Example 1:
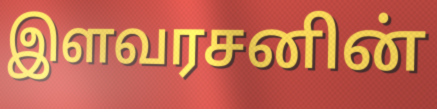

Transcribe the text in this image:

இளவரசனின்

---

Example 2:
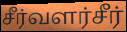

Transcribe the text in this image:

சீர்வளர்சீர்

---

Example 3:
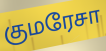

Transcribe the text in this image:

குமரேசா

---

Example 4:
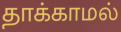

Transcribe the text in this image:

தாக்காமல்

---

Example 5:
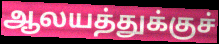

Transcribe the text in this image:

ஆலயத்துக்குச்